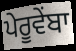
ਪੇਰੂਵੇਂਬਾ